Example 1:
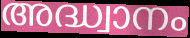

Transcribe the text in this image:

അദ്ധ്വാനം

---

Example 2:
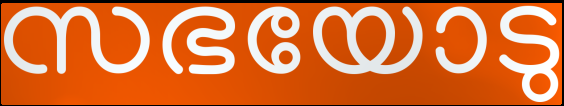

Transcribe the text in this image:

സഭയോടു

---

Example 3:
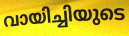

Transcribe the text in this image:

വായിച്ചിയുടെ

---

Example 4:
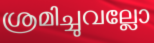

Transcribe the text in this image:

ശ്രമിച്ചുവല്ലോ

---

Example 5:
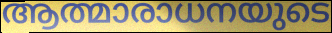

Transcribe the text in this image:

ആത്മാരാധനയുടെ